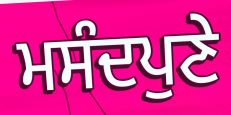
ਮਸੰਦਪੁਣੇ